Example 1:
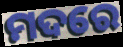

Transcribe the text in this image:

ମଦରେ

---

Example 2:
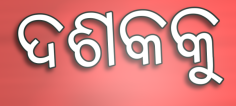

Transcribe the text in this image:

ଦଶକକୁ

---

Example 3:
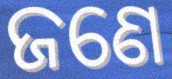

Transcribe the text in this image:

ଜଣେ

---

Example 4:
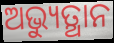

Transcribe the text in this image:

ଅଭ୍ୟୁତ୍ଥାନ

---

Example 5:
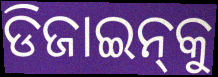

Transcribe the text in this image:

ଡିଜାଇନ୍‌କୁ